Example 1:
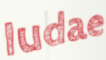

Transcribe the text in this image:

Iudae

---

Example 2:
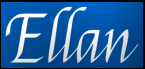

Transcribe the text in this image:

Ellan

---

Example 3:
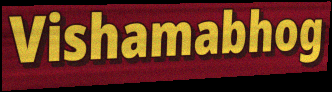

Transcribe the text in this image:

Vishamabhog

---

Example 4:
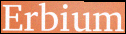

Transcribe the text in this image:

Erbium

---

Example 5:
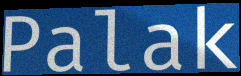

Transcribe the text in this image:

Palak